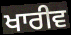
ਖਾਰੀਵ